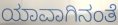
ಯಾವಾಗಿನಂತೆ